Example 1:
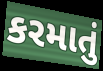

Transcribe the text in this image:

કરમાતું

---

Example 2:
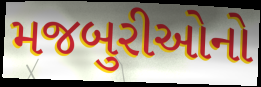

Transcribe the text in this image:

મજબુરીઓનો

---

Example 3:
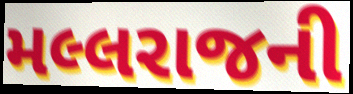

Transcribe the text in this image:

મલ્લરાજની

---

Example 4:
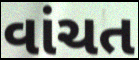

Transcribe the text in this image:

વાંચત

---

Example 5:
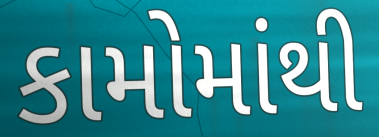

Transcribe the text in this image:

કામોમાંથી